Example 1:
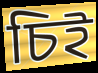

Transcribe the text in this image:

চিই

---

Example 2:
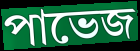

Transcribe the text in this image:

পাভেজ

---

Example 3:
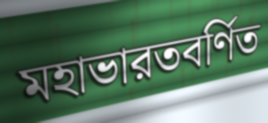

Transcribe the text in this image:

মহাভারতবর্ণিত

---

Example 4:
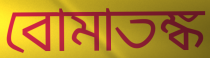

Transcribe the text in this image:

বোমাতঙ্ক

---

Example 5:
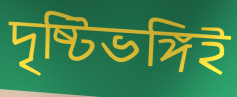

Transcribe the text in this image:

দৃষ্টিভঙ্গিই